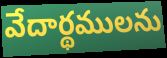
వేదార్థములను